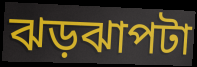
ঝড়ঝাপটা